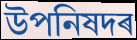
উপনিষদৰ